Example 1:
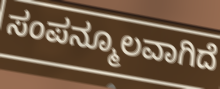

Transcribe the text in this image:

ಸಂಪನ್ಮೂಲವಾಗಿದೆ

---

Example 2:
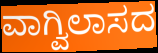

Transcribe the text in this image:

ವಾಗ್ವಿಲಾಸದ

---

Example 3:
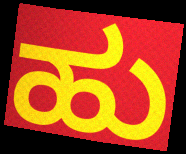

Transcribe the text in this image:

ಹು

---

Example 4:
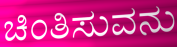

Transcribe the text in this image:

ಚಿಂತಿಸುವನು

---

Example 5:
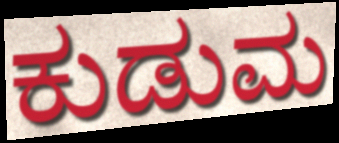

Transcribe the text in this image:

ಕುಡುಮ